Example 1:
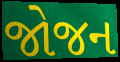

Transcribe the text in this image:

જોજન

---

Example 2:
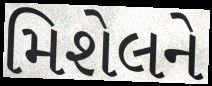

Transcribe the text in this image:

મિશેલને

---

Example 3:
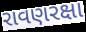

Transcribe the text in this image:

રાવણરક્ષા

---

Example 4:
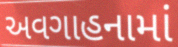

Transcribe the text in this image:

અવગાહનામાં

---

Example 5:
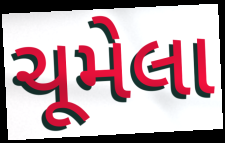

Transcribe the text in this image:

ચૂમેલા